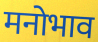
मनोभाव